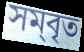
সম্‌বৃত